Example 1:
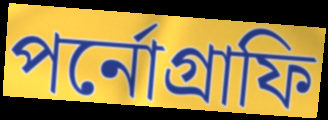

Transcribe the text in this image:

পর্নোগ্রাফি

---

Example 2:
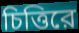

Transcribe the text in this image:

চিত্তিরে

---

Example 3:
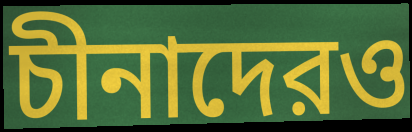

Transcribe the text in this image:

চীনাদেরও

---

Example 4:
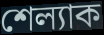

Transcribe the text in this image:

শেল্যাক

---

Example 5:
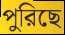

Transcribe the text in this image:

পুরিছে